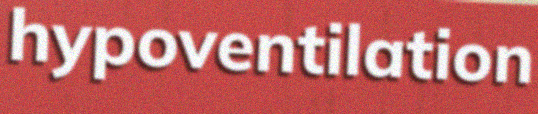
hypoventilation